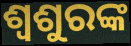
ଶ୍ୱଶୁରଙ୍କ